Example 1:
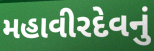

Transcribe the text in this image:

મહાવીરદેવનું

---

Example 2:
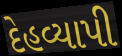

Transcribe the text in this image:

દેહવ્યાપી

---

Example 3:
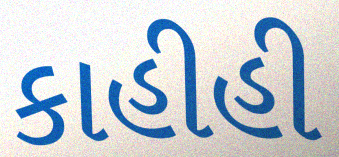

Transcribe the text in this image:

કાહીહી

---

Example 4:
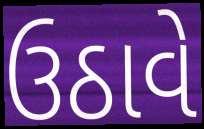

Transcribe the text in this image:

ઉઠાવે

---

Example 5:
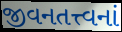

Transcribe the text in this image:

જીવનતત્ત્વનાં